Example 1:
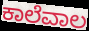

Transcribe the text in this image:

ಕಾಲೆವಾಲ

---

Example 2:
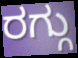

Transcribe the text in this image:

ರಗ್ಗು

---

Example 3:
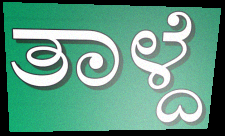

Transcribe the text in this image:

ತಾಳ್ದೆ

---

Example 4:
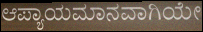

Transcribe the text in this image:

ಆಪ್ಯಾಯಮಾನವಾಗಿಯೇ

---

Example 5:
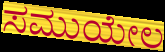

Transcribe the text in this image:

ಸಮುಯೇಲ